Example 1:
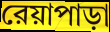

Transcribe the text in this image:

রেয়াপাড়া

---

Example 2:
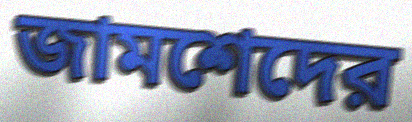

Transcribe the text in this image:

জামশেদের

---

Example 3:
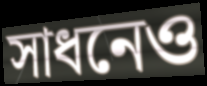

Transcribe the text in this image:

সাধনেও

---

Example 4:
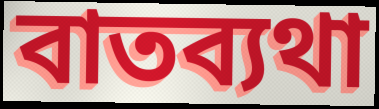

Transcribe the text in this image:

বাতব্যথা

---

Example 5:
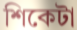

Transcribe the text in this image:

শিকেটা